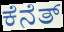
ಕೆನೆತ್